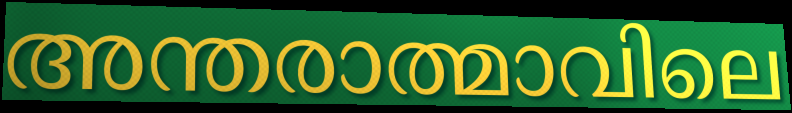
അന്തരാത്മാവിലെ